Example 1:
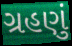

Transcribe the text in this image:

ગ્રહણું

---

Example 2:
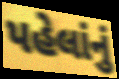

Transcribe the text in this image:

પહેલાંનું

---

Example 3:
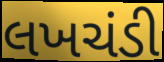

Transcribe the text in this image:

લખચંડી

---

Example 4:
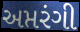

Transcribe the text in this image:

અપ્તરંગી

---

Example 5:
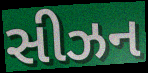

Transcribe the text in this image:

સીઝન